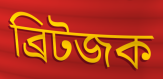
ব্রিটজক